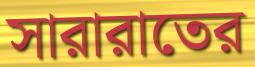
সারারাতের